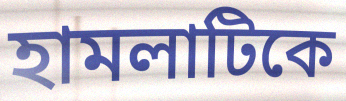
হামলাটিকে